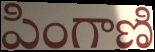
పింగాణి